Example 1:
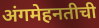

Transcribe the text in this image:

अंगमेहनतीची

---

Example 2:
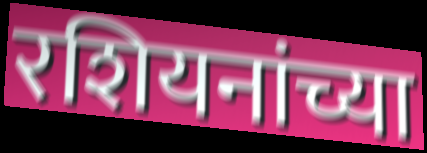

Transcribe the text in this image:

रशियनांच्या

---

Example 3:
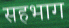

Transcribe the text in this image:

सहभाग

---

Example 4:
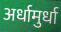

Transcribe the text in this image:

अर्धामुर्धा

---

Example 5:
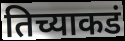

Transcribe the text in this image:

तिच्याकडं